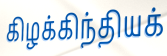
கிழக்கிந்தியக்